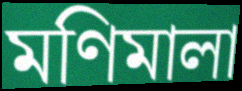
মণিমালা